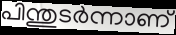
പിന്തുടർന്നാണ്